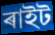
ৰাইট